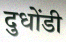
दुधोंडी